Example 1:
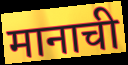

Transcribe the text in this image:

मानाची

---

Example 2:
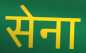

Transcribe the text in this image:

सेना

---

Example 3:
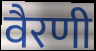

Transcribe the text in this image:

वैरणी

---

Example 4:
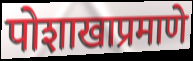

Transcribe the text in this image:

पोशाखाप्रमाणे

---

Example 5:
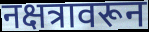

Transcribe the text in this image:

नक्षत्रावरून